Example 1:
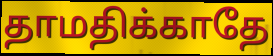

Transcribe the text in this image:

தாமதிக்காதே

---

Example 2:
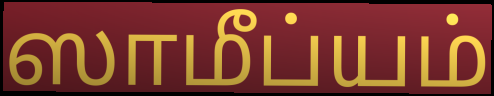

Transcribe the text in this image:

ஸாமீப்யம்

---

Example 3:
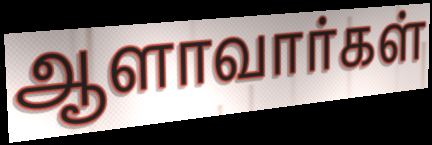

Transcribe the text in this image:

ஆளாவார்கள்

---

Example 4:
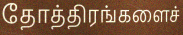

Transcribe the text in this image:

தோத்திரங்களைச்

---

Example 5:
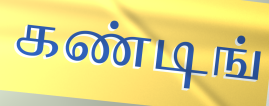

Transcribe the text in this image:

கண்டிங்